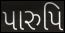
પારુપિ